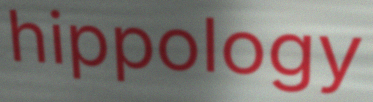
hippology